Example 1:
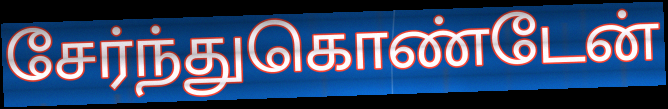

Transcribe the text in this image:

சேர்ந்துகொண்டேன்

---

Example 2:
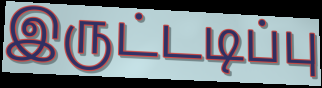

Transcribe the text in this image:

இருட்டடிப்பு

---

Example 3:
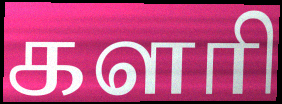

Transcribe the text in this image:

களரி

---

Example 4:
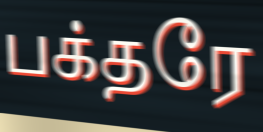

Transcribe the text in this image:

பக்தரே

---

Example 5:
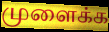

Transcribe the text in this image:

முளைக்க